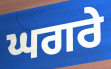
ਘਗਰੇ